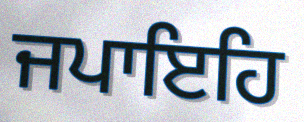
ਜਪਾਇਹਿ